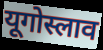
यूगोस्लाव